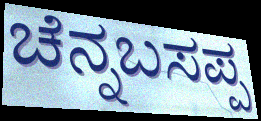
ಚೆನ್ನಬಸಪ್ಪ